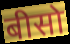
बीसो